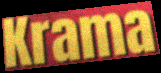
Krama